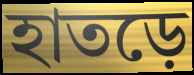
হাতড়ে